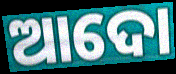
ଆଦୋ